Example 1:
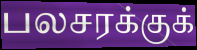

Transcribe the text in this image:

பலசரக்குக்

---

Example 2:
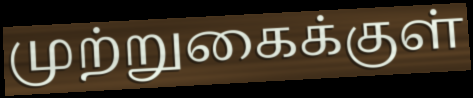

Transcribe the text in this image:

முற்றுகைக்குள்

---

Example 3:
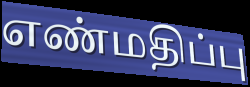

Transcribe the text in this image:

எண்மதிப்பு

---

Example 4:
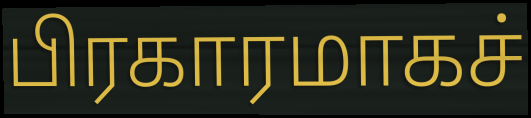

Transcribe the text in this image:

பிரகாரமாகச்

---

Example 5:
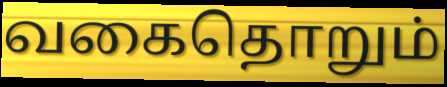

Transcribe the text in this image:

வகைதொறும்